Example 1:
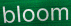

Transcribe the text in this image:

bloom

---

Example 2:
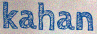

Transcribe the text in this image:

kahan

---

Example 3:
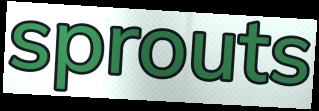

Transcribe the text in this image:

sprouts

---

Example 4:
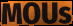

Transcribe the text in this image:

MOUs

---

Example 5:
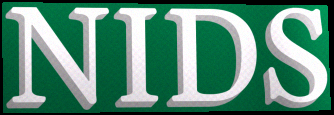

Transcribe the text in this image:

NIDS